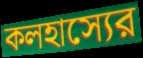
কলহাস্যের